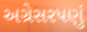
અગ્રેસરપણું